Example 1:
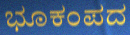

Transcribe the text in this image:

ಭೂಕಂಪದ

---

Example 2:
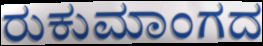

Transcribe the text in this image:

ರುಕುಮಾಂಗದ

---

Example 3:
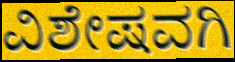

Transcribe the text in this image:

ವಿಶೇಷವಗಿ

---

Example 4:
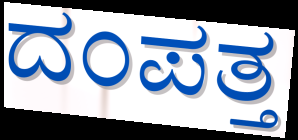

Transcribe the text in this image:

ದಂಪತ್ತ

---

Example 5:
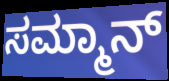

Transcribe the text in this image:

ಸಮ್ಮಾನ್